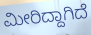
ಮೀರಿದ್ದಾಗಿದೆ